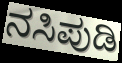
ನಸಿಪುಡಿ